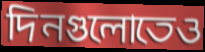
দিনগুলোতেও